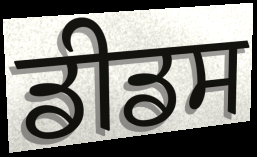
ਡੀਡਸ